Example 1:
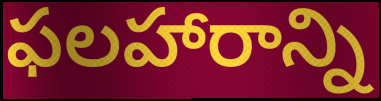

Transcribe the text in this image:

ఫలహారాన్ని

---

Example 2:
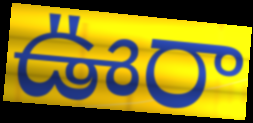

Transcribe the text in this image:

ఊరా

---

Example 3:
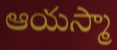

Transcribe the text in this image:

ఆయస్మా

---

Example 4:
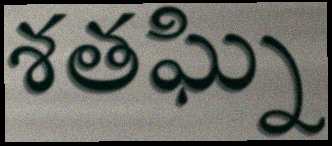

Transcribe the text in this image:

శతఘ్ని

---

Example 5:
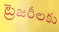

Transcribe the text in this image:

ట్రెజరీలకు